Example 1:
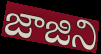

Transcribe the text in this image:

జాజిని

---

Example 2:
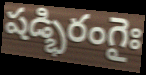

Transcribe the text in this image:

షడ్భిరంగైః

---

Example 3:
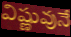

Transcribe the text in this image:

విష్ణువునే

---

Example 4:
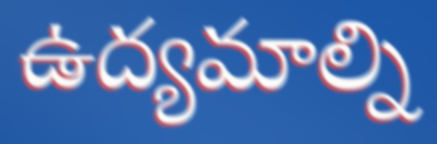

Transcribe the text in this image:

ఉద్యమాల్ని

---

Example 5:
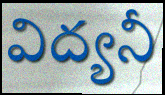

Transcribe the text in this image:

విద్యనీ